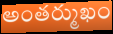
అంతర్ముఖం